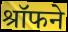
श्रॉफने